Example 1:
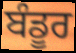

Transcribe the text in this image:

ਬੰਡੂਰ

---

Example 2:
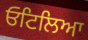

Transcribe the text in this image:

ਓਟਿਲਿਆ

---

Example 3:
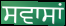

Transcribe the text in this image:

ਸਵਾਸਾਂ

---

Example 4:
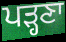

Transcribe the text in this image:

ਪੜ੍ਹਣਾ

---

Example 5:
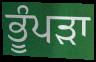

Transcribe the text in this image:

ਭੂੰਪੜਾ